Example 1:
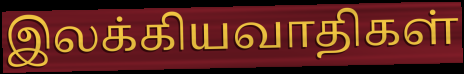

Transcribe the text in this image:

இலக்கியவாதிகள்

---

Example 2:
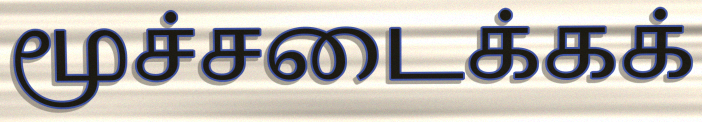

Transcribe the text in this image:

மூச்சடைக்கக்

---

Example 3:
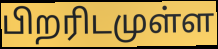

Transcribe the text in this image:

பிறரிடமுள்ள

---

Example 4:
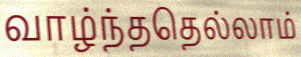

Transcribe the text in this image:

வாழ்ந்ததெல்லாம்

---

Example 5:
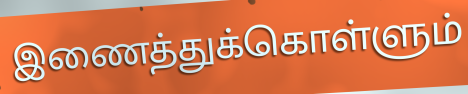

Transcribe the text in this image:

இணைத்துக்கொள்ளும்